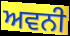
ਅਵਨੀ